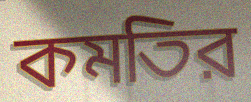
কমতির